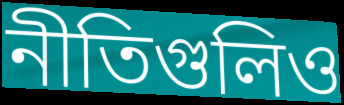
নীতিগুলিও